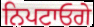
ਨਿਪਟਾਓਗੇ